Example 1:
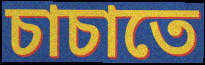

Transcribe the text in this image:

চাচাতে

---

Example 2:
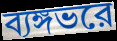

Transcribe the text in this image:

ব্যঙ্গভরে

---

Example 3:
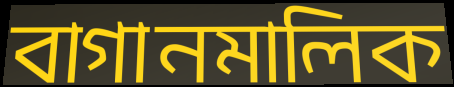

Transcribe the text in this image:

বাগানমালিক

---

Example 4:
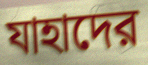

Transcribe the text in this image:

যাহাদের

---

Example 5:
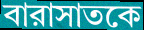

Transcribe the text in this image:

বারাসাতকে